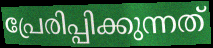
പ്രേരിപ്പിക്കുന്നത്